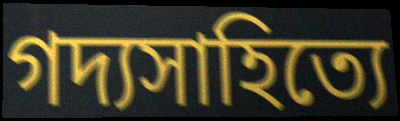
গদ্যসাহিত্যে